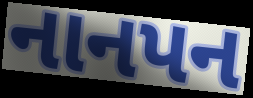
નાનપન